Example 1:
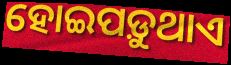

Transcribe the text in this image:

ହୋଇପଡ଼ୁଥାଏ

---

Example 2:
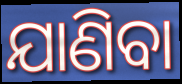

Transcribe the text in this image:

ଯାଣିବା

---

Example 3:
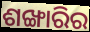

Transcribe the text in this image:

ଶଙ୍ଖାରିର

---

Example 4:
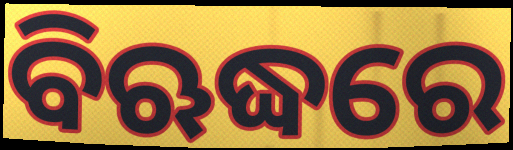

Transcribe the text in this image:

ବିଋଦ୍ଧରେ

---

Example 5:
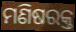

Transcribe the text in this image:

ମଣିଷରକ୍ତ